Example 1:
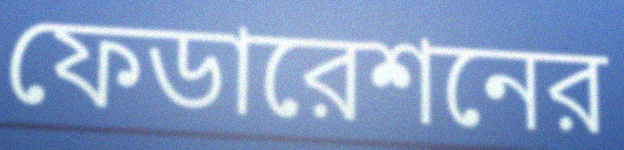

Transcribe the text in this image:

ফেডারেশনের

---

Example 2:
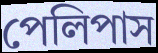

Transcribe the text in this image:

পেলিপাস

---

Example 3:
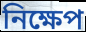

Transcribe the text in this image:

নিক্ষেপ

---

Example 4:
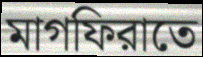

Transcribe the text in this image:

মাগফিরাতে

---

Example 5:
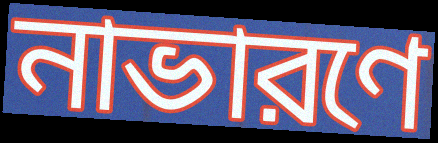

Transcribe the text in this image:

নাভারণে